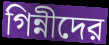
গিন্নীদের